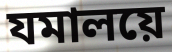
যমালয়ে